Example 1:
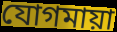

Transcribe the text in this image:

যোগমায়া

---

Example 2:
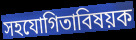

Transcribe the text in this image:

সহযোগিতাবিষয়ক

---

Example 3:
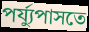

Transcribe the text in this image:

পর্য্যুপাসতে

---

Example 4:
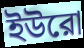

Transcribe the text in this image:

ইউরো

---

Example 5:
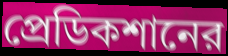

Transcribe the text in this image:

প্রেডিকশানের